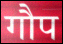
गौप